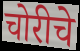
चोरीचे